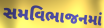
સમવિભાજનમાં